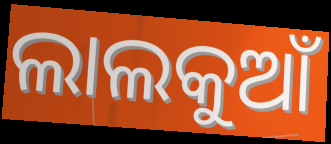
ଲାଲକୁଆଁ